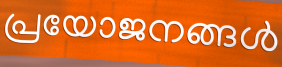
പ്രയോജനങ്ങൾ